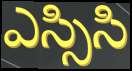
ఎస్సిసి